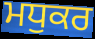
ਮਧੁਕਰ